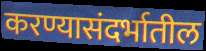
करण्यासंदर्भातील